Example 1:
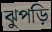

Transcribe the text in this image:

ঝুপড়ি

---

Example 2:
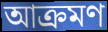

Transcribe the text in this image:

আক্রমণ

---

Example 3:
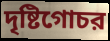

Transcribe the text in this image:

দৃষ্টিগোচর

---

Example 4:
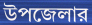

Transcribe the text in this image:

উপজেলার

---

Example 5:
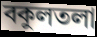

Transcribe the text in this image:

বকুলতলা